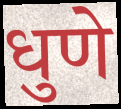
धुणे